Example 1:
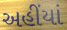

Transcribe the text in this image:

અહીંયાં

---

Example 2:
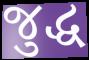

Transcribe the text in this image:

જુદ્ધ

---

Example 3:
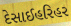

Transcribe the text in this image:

દેસાઈહરિહર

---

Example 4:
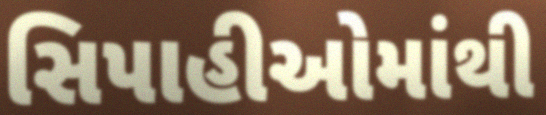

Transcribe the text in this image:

સિપાહીઓમાંથી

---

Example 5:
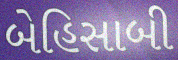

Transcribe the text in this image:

બેહિસાબી